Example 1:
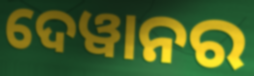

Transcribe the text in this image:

ଦେୱାନର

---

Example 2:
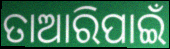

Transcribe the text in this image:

ତାଆରିପାଇଁ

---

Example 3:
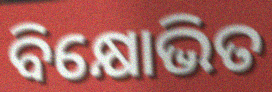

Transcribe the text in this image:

ବିକ୍ଷୋଭିତ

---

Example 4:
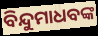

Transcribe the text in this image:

ବିନ୍ଦୁମାଧବଙ୍କ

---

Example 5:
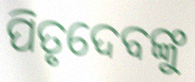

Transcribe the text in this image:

ପିତୃଦେବଙ୍କୁ